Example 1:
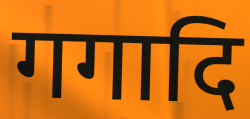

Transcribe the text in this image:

गगादि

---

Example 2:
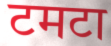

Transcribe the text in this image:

टमटा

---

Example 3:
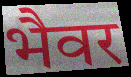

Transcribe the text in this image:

भैवर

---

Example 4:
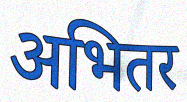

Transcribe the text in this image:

अभितर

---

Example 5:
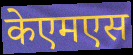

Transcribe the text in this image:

केएमएस